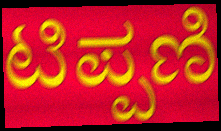
ಟಿಪ್ಪಣಿ